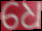
ଧେ